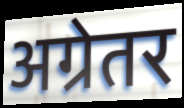
अग्रेतर